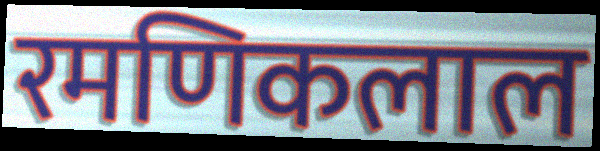
रमणिकलाल